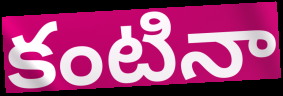
కంటినా